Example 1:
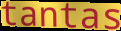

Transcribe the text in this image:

tantas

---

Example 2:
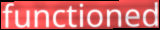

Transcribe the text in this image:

functioned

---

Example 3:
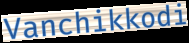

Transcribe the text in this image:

Vanchikkodi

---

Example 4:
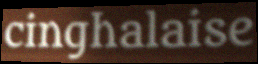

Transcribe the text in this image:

cinghalaise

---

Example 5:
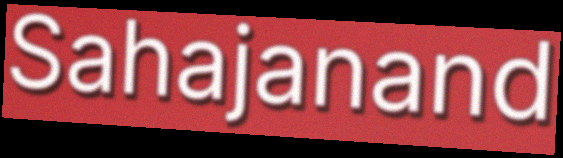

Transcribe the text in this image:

Sahajanand